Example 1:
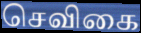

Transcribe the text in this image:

செவிகை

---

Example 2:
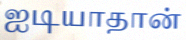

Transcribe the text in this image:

ஐடியாதான்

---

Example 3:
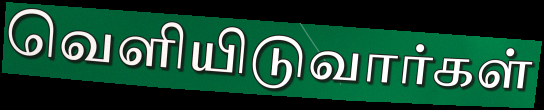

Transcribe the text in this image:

வெளியிடுவார்கள்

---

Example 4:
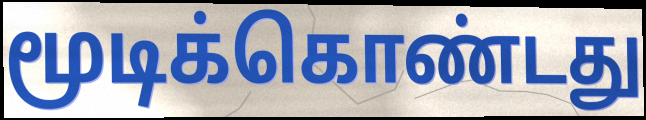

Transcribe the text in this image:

மூடிக்கொண்டது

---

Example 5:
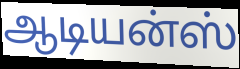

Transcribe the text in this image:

ஆடியன்ஸ்